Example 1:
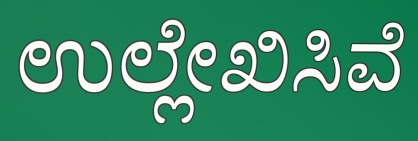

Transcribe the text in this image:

ಉಲ್ಲೇಖಿಸಿವೆ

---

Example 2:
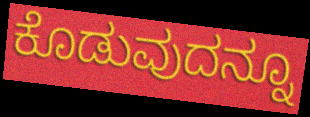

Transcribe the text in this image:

ಕೊಡುವುದನ್ನೂ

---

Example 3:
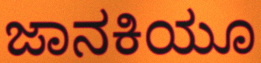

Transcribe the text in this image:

ಜಾನಕಿಯೂ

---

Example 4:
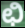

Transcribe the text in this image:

ಛಿ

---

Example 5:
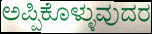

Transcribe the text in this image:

ಅಪ್ಪಿಕೊಳ್ಳುವುದರ